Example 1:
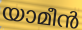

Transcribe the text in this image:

യാമീൻ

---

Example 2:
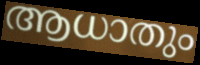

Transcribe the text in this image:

ആധാതും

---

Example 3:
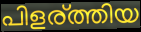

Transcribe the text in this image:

പിളര്ത്തിയ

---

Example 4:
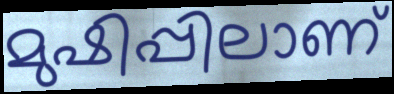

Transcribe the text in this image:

മുഷിപ്പിലാണ്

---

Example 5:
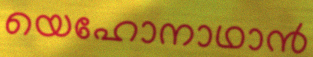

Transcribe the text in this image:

യെഹോനാഥാൻ